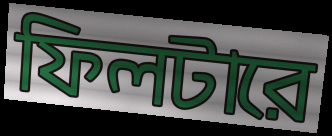
ফিলটারে